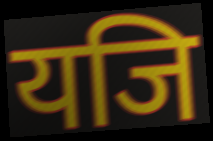
यजि